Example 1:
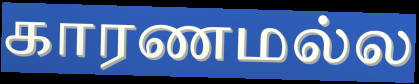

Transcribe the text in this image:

காரணமல்ல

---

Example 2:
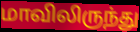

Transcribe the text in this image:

மாவிலிருந்து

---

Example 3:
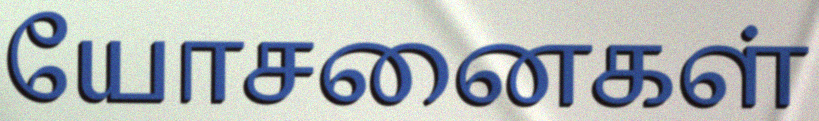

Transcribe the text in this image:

யோசனைகள்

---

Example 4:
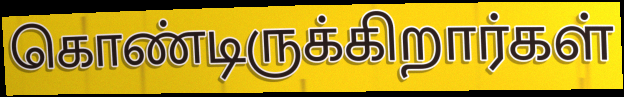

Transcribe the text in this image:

கொண்டிருக்கிறார்கள்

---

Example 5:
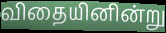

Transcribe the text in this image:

விதையினின்று